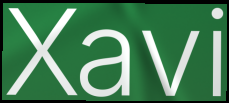
Xavi